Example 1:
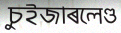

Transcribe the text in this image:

চুইজাৰলেণ্ড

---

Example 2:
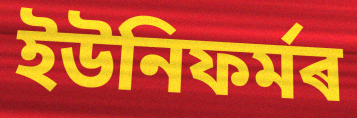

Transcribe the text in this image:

ইউনিফৰ্মৰ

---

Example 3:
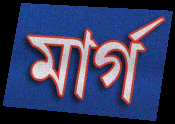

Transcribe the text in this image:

মাৰ্গ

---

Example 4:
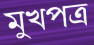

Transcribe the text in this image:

মুখপত্ৰ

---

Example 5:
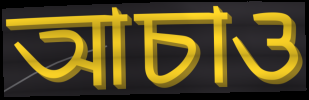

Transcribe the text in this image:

আচাও